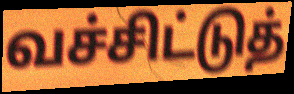
வச்சிட்டுத்